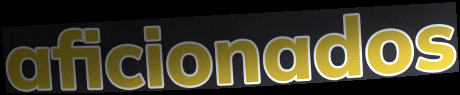
aficionados